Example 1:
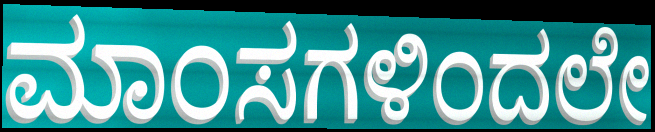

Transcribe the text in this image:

ಮಾಂಸಗಳಿಂದಲೇ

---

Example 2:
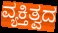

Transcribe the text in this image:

ವ್ಯಕ್ತಿತ್ವದ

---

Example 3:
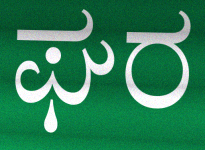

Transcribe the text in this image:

ಘರ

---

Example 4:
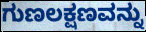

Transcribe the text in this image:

ಗುಣಲಕ್ಷಣವನ್ನು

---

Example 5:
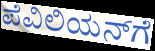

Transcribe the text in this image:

ಪೆವಿಲಿಯನ್‌ಗೆ